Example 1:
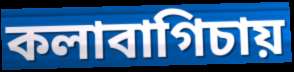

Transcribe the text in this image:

কলাবাগিচায়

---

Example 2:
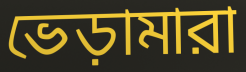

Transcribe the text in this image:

ভেড়ামারা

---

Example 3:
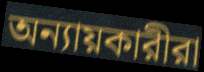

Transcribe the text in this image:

অন্যায়কারীরা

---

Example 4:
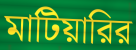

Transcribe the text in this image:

মাটিয়ারির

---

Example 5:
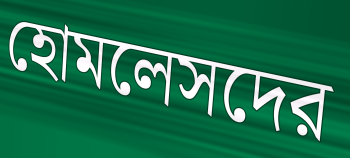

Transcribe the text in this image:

হোমলেসদের